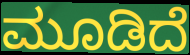
ಮೂಡಿದೆ